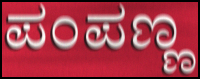
ಪಂಪಣ್ಣ